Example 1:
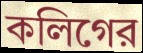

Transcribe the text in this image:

কলিগের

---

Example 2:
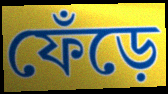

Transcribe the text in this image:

ফেঁড়ে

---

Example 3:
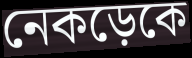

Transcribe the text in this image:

নেকড়েকে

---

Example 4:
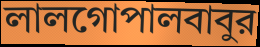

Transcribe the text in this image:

লালগোপালবাবুর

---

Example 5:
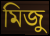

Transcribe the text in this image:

মিজু